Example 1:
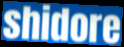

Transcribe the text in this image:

shidore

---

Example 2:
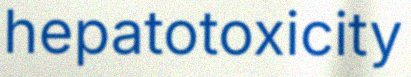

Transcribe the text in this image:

hepatotoxicity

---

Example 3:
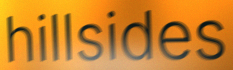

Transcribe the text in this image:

hillsides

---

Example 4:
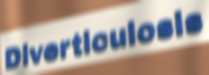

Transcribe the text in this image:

Diverticulosis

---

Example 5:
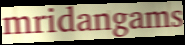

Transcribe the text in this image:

mridangams